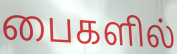
பைகளில்